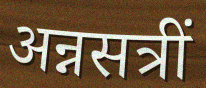
अन्नसत्रीं